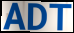
ADT